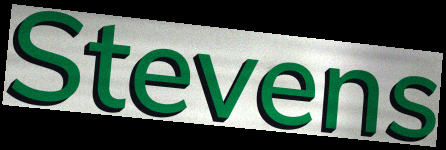
Stevens